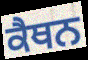
ਕੈਥਨ